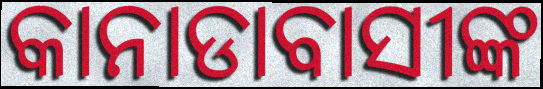
କାନାଡାବାସୀଙ୍କ